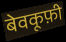
बेवकूफ़ी